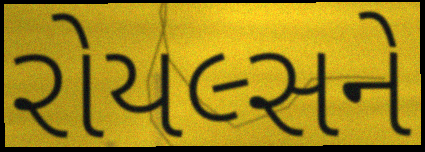
રોયલ્સને